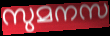
സുമനസ